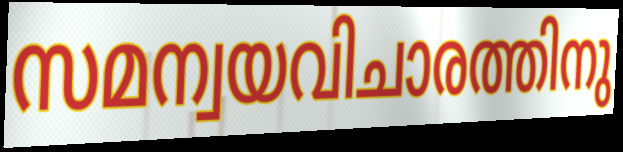
സമന്വയവിചാരത്തിനു